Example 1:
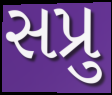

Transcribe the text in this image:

સપ્રુ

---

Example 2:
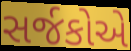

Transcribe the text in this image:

સર્જકોએ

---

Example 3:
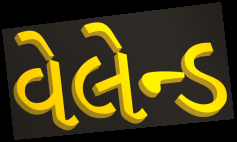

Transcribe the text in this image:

વેલેન્ડ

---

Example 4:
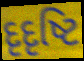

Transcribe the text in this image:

દૃદૃષ્ટિ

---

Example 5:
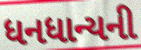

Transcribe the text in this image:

ધનધાન્યની